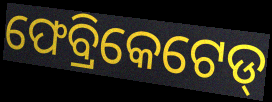
ଫେବ୍ରିକେଟେଡ୍